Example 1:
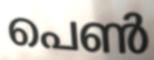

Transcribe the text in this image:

പെൺ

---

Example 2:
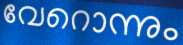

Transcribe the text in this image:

വേറൊന്നും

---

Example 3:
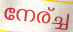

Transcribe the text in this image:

നേര്ച്ച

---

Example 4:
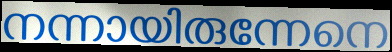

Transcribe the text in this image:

നന്നായിരുന്നേനെ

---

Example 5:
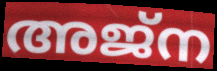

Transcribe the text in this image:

അജ്ന